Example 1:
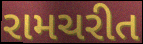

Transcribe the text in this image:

રામચરીત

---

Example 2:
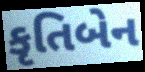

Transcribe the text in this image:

કૃતિબેન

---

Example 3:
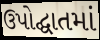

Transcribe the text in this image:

ઉપોદ્ઘાતમાં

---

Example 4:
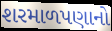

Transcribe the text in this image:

શરમાળપણાનો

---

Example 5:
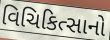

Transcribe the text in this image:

વિચિકિત્સાનો